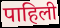
पाहिली